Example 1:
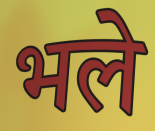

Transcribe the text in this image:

भले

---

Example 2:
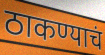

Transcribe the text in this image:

ठाकण्याचं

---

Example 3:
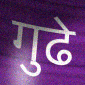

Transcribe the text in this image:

गुढे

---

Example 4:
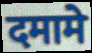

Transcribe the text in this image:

दमामे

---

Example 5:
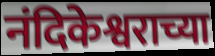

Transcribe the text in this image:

नंदिकेश्वराच्या